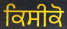
ਕਿਸੀਕੋ